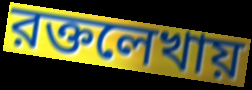
রক্তলেখায়